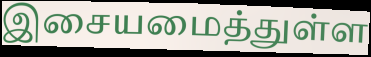
இசையமைத்துள்ள